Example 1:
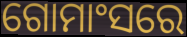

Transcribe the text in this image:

ଗୋମାଂସରେ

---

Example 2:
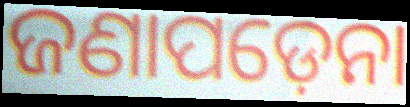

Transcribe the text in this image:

ଜଣାପଡ଼େନା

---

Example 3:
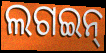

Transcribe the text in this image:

ଲଗଇନ୍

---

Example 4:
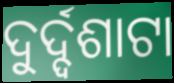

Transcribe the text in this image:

ଦୁର୍ଦ୍ଦଶାଟା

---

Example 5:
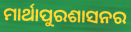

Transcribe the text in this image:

ମାର୍ଥାପୁରଶାସନର